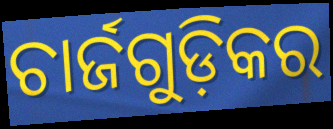
ଚାର୍ଜଗୁଡ଼ିକର